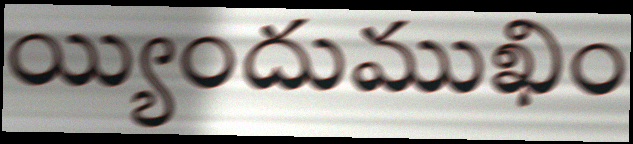
య్యిందుముఖిం